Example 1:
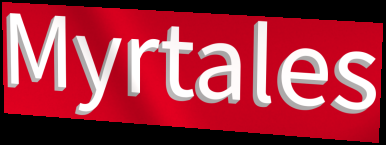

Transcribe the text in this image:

Myrtales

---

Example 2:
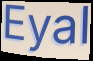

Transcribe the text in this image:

Eyal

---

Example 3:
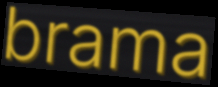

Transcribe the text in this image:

brama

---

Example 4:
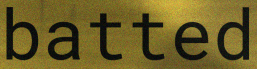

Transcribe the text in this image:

batted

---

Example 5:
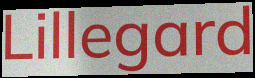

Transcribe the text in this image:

Lillegard